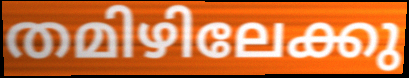
തമിഴിലേക്കു